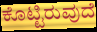
ಕೊಟ್ಟಿರುವುದೆ